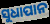
ସୁଧାପାନ